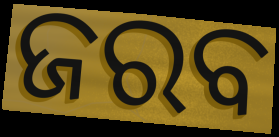
ଜରବ